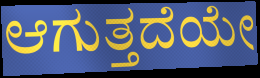
ಆಗುತ್ತದೆಯೇ